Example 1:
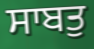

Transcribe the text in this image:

ਸਾਬਤੁ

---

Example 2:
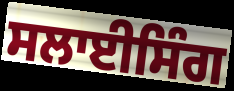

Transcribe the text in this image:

ਸਲਾਈਸਿੰਗ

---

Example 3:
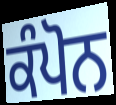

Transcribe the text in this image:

ਕੰਪੋਨ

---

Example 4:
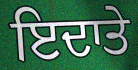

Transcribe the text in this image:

ਇਦਾਤੇ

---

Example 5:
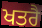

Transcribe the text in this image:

ਖਤਰੈ